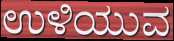
ಉಳಿಯುವ